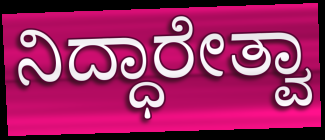
ನಿದ್ಧಾರೇತ್ವಾ